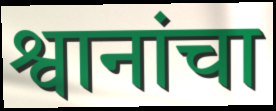
श्वानांचा